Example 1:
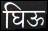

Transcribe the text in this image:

घिऊ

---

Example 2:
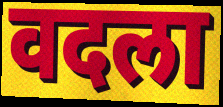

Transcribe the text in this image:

वदला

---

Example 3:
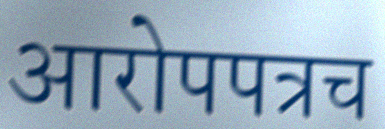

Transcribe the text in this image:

आरोपपत्रच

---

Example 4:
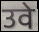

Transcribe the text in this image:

उवे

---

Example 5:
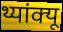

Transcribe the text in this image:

थ्यांक्यू